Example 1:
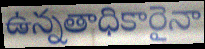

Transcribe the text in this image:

ఉన్నతాధికారైనా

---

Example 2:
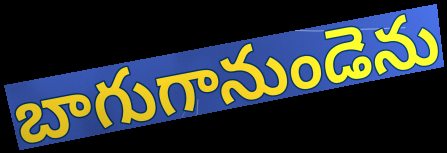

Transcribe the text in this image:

బాగుగానుండెను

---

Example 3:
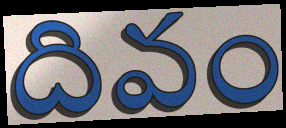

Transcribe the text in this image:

దివం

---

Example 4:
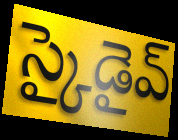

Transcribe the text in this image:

స్కైడైవ్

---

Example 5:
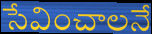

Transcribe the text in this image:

సేవించాలనే